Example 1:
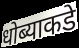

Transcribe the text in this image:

धोब्याकडे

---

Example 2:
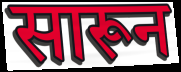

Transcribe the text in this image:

सारून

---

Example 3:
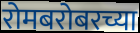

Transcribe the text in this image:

रोमबरोबरच्या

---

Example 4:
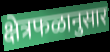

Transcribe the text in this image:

क्षेत्रफळानुसार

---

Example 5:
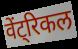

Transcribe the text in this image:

वेंट्रिकल